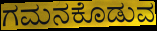
ಗಮನಕೊಡುವ